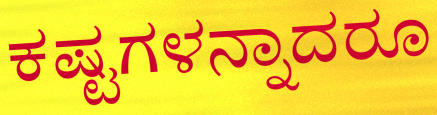
ಕಷ್ಟಗಳನ್ನಾದರೂ